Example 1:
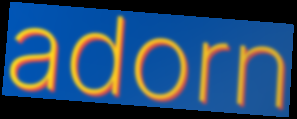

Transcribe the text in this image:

adorn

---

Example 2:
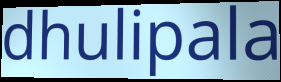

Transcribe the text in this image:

dhulipala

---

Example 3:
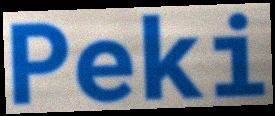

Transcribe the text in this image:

Peki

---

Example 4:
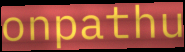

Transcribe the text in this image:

onpathu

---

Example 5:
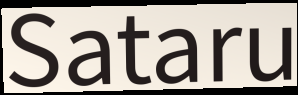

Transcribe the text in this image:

Sataru